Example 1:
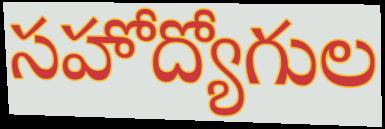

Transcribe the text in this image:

సహోద్యోగుల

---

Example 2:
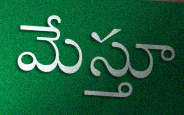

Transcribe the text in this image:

మేస్తూ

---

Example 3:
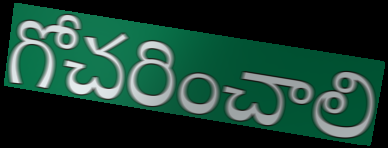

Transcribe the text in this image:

గోచరించాలి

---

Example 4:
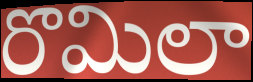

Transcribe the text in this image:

రొమిలా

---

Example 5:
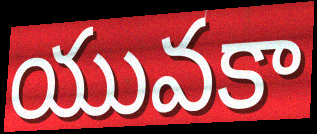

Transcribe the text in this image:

యువకా